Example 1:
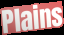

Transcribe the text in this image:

Plains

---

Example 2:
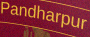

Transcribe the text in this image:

Pandharpur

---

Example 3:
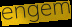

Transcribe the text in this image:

engem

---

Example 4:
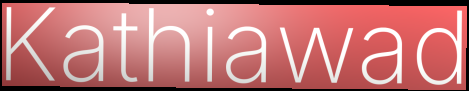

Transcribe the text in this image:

Kathiawad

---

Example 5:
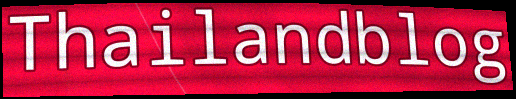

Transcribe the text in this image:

Thailandblog